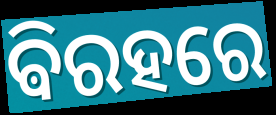
ଵିରହରେ